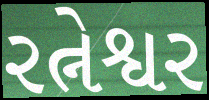
રત્નેશ્વર